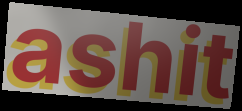
ashit